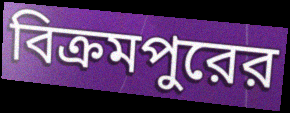
বিক্রমপুরের